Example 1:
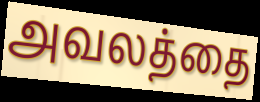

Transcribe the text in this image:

அவலத்தை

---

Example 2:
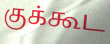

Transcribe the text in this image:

குக்கூட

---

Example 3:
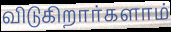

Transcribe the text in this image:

விடுகிறார்களாம்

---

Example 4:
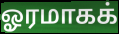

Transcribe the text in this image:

ஓரமாகக்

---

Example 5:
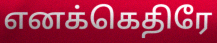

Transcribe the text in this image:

எனக்கெதிரே